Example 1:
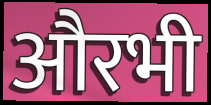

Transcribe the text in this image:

औरभी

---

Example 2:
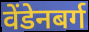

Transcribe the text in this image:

वेंडेनबर्ग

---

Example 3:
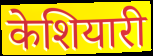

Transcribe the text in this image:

केशियारी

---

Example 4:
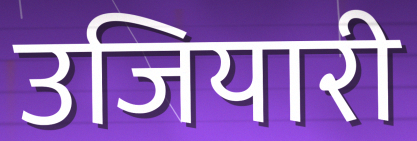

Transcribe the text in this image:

उजियारी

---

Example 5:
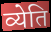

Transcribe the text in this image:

व्येति